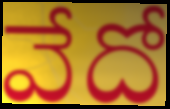
వేదో